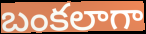
బంకలాగా